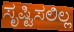
ಸೃಷ್ಟಿಸಲಿಲ್ಲ